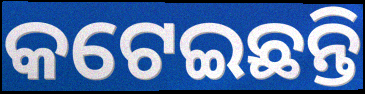
କଟେଇଛନ୍ତି